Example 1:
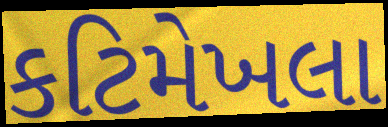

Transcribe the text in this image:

કટિમેખલા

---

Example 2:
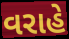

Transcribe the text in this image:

વરાહે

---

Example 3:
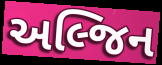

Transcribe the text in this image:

અલ્જિન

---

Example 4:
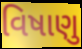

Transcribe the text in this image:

વિષાણુ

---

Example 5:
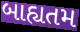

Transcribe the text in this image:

બાહ્યતમ